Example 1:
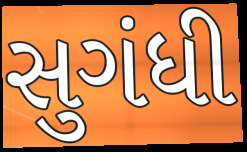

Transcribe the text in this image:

સુગંધી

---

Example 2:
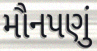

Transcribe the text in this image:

મૌનપણું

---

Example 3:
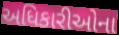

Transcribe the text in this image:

અધિકારીઓના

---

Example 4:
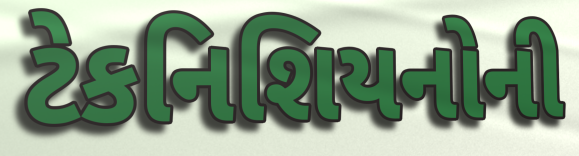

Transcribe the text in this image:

ટેકનિશિયનોની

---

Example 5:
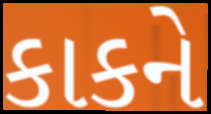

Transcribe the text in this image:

કાકને